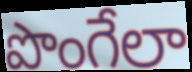
పొంగేలా